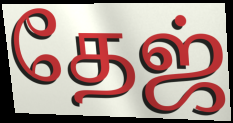
தேஜ்